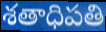
శతాధిపతి